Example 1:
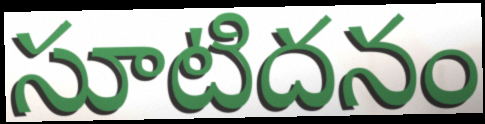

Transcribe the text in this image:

సూటిదనం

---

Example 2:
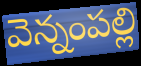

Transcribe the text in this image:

వెన్నంపల్లి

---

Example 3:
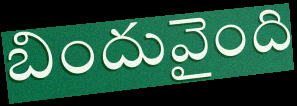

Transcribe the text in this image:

బిందువైంది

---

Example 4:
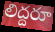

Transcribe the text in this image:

లిద్దరూ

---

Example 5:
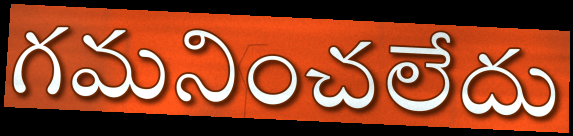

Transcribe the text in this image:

గమనించలేదు